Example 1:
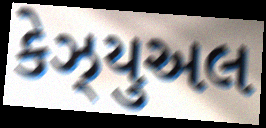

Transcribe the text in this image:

કેઝ્યુઅલ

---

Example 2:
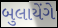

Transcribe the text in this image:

બુલાયેંગે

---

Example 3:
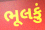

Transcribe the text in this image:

ભૂલકું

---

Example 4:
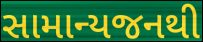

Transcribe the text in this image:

સામાન્યજનથી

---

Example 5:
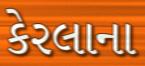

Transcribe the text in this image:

કેરલાના